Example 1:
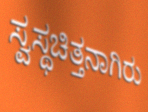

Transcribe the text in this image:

ಸ್ವಸ್ಥಚಿತ್ತನಾಗಿರು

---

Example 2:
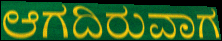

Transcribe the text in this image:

ಆಗದಿರುವಾಗ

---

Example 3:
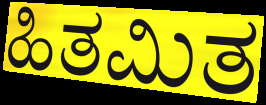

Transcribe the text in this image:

ಹಿತಮಿತ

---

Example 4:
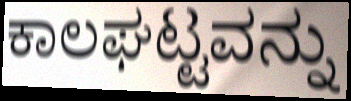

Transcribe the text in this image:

ಕಾಲಘಟ್ಟವನ್ನು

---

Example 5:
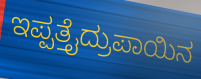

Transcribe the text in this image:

ಇಪ್ಪತ್ತೈದ್ರುಪಾಯಿನ